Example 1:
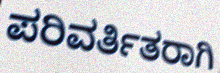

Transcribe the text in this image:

ಪರಿವರ್ತಿತರಾಗಿ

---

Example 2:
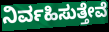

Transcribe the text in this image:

ನಿರ್ವಹಿಸುತ್ತೇವೆ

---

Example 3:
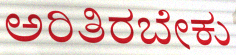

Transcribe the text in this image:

ಅರಿತಿರಬೇಕು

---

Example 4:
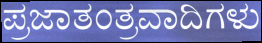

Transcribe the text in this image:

ಪ್ರಜಾತಂತ್ರವಾದಿಗಳು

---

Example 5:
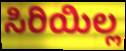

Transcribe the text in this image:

ಸಿರಿಯಿಲ್ಲ